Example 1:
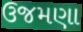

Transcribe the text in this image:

ઉજમણા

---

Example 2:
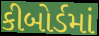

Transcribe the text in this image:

કીબોર્ડમાં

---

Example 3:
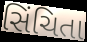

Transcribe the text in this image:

સિંચિતા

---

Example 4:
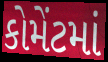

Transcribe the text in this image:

કોમેંટમાં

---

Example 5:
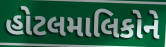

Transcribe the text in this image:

હોટલમાલિકોને